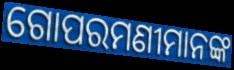
ଗୋପରମଣୀମାନଙ୍କ